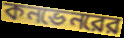
কনভেনরের